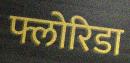
फ्लोरिडा